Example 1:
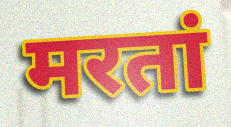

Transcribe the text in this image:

मरतां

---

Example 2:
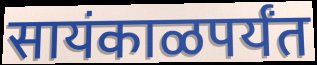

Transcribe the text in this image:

सायंकाळपर्यंत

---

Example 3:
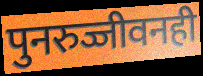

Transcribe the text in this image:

पुनरुज्जीवनही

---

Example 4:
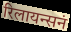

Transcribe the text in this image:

रिलायन्सनं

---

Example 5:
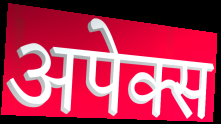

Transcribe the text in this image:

अपेक्स